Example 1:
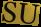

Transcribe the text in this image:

SU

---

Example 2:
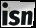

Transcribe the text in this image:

isn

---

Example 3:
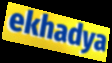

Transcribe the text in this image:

ekhadya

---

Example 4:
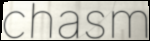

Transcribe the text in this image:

chasm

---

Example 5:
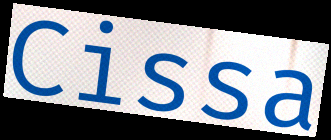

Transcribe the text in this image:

Cissa